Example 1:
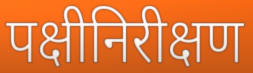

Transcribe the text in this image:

पक्षीनिरीक्षण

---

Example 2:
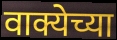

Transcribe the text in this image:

वाक्येच्या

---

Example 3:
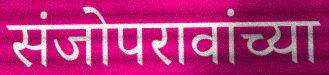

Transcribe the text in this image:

संजोपरावांच्या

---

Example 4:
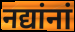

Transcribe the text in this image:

नद्यांनां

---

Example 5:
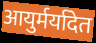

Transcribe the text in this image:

आयुर्मर्यादेत